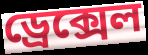
ড্রেক্সেল